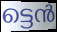
ട്ടെൻ